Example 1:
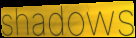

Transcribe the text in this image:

shadows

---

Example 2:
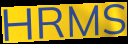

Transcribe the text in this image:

HRMS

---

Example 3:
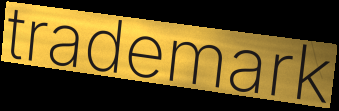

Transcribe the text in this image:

trademark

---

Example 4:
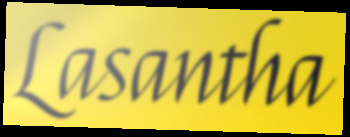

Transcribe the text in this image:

Lasantha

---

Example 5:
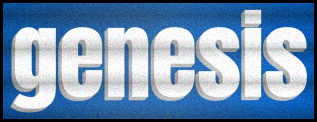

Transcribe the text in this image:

genesis